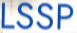
LSSP